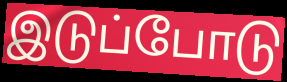
இடுப்போடு